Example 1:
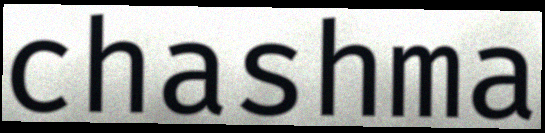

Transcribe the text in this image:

chashma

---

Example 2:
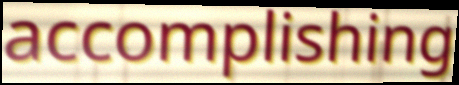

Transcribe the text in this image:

accomplishing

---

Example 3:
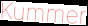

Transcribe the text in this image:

Kummer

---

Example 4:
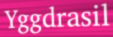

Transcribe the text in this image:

Yggdrasil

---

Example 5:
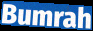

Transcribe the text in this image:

Bumrah